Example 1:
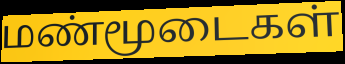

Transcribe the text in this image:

மண்மூடைகள்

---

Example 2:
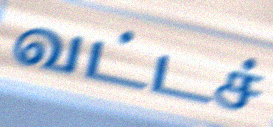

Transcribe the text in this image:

வட்டச்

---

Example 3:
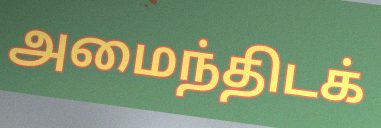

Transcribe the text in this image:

அமைந்திடக்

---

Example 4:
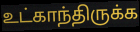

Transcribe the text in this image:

உட்காந்திருக்க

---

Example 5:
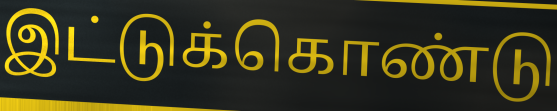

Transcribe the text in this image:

இட்டுக்கொண்டு